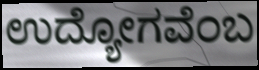
ಉದ್ಯೋಗವೆಂಬ